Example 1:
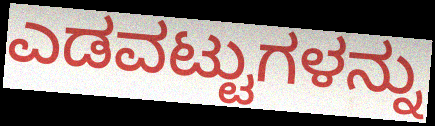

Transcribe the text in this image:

ಎಡವಟ್ಟುಗಳನ್ನು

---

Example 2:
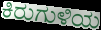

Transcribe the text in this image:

ಕಿರುಗುಳಿಯ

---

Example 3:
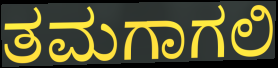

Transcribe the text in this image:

ತಮಗಾಗಲಿ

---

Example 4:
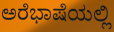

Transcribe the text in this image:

ಅರೆಭಾಷೆಯಲ್ಲಿ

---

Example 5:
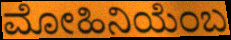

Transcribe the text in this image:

ಮೋಹಿನಿಯೆಂಬ